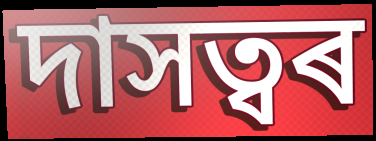
দাসত্বৰ